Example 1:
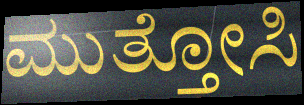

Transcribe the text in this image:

ಮುತ್ತೋಸಿ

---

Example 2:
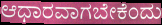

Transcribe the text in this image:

ಆಧಾರವಾಗಬೇಕೆಂದು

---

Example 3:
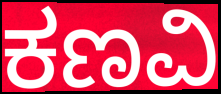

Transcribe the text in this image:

ಕಣವಿ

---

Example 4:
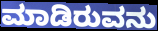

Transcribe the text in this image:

ಮಾಡಿರುವನು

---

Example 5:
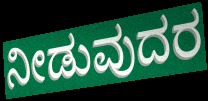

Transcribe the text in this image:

ನೀಡುವುದರ